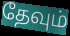
தேவும்